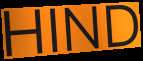
HIND